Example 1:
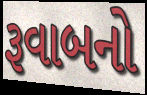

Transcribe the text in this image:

રૂવાબનો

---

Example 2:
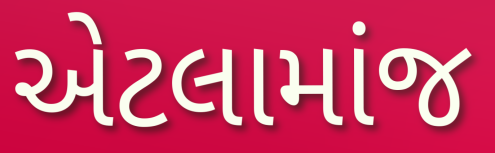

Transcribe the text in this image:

એટલામાંજ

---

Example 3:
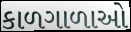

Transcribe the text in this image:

કાળગાળાઓ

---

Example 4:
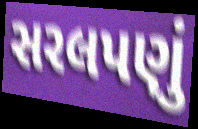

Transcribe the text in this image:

સરલપણું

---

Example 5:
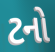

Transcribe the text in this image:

ટનો